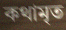
কথামৃত